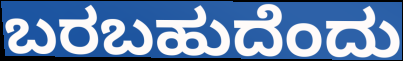
ಬರಬಹುದೆಂದು